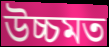
উচ্চমত